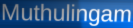
Muthulingam